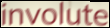
involute